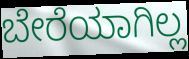
ಬೇರೆಯಾಗಿಲ್ಲ